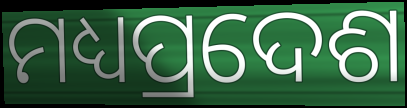
ମଧ୍ୟପ୍ରଦେଶ